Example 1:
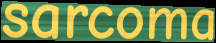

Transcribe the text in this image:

sarcoma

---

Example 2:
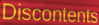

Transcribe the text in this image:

Discontents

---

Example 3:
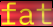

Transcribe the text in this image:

fat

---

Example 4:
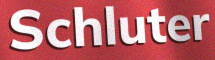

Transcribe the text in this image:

Schluter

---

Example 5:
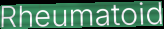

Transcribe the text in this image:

Rheumatoid